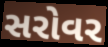
સરોવર